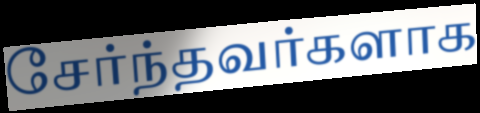
சேர்ந்தவர்களாக